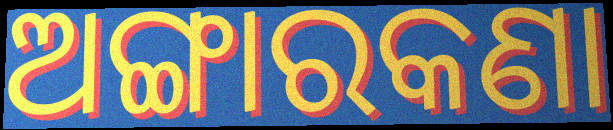
ଅଙ୍ଗାରକଣା